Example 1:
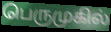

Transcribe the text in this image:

பெருமுகில்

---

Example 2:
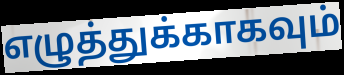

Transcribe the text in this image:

எழுத்துக்காகவும்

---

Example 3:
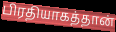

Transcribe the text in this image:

பிரதியாகத்தான்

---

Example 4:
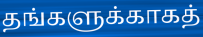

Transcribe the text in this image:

தங்களுக்காகத்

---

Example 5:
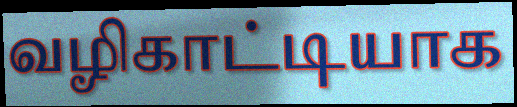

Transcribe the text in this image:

வழிகாட்டியாக